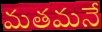
మతమనే